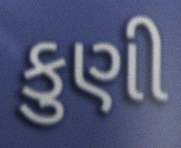
કુણી